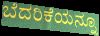
ಬೆದರಿಕೆಯನ್ನೂ